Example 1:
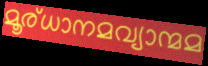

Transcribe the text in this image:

മൂര്ധാനമവ്യാന്മമ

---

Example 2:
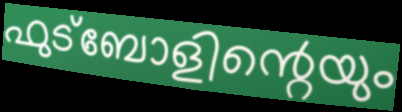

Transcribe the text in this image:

ഫുട്ബോളിന്റെയും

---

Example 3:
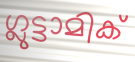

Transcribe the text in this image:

ഗ്ലുട്ടാമിക്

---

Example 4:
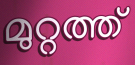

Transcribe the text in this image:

മുറ്റത്ത്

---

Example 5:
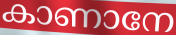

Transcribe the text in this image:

കാണാനേ